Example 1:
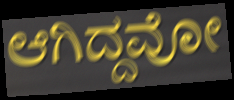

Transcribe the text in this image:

ಆಗಿದ್ದವೋ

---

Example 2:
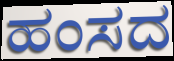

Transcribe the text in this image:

ಹಂಸದ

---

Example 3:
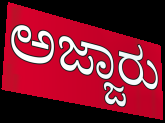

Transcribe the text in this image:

ಅಜ್ಜಾರು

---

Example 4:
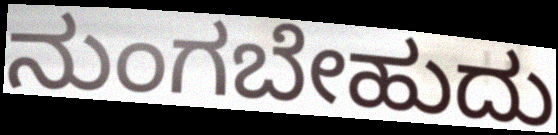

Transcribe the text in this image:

ನುಂಗಬೇಹುದು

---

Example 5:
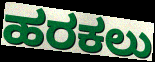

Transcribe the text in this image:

ಹರಕಲು